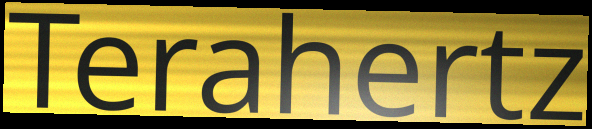
Terahertz